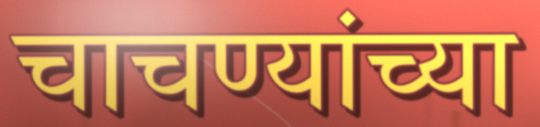
चाचण्यांच्या